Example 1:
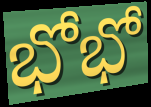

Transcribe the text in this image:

భోభో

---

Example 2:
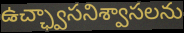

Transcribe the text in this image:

ఉచ్ఛ్వాసనిశ్వాసలను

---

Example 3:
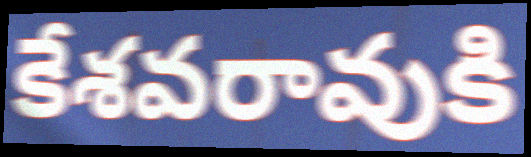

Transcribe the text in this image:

కేశవరావుకి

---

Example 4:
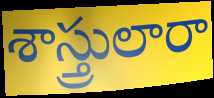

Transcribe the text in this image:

శాస్త్రులారా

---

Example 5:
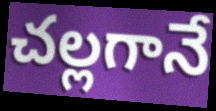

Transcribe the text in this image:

చల్లగానే